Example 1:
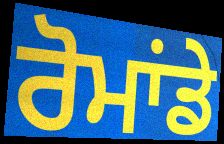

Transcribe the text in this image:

ਰੋਮਾਂਡੇ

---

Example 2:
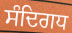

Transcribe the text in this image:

ਸੰਦਿਗਧ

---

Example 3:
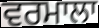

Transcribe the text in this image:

ਵਰਮਾਲਾ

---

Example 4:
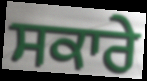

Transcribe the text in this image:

ਸਕਾਰੇ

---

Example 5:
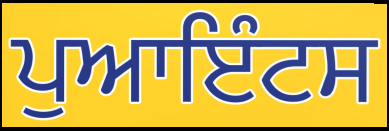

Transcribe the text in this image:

ਪੁਆਇੰਟਸ